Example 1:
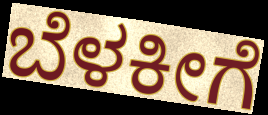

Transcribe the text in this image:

ಬೆಳಕೀಗೆ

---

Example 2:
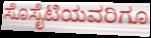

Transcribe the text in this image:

ಸೊಸೈಟಿಯವರಿಗೂ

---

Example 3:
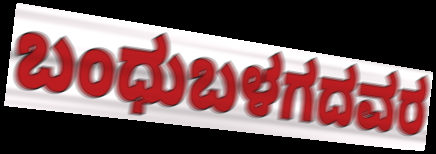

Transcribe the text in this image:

ಬಂಧುಬಳಗದವರ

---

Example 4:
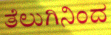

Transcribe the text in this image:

ತೆಲುಗಿನಿಂದ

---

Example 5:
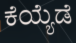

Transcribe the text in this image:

ಕೆಯ್ಯೆಡೆ